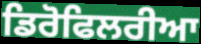
ਡਿਰੋਫਿਲਰੀਆ